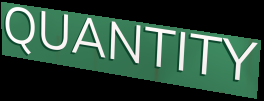
QUANTITY